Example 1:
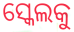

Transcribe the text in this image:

ସ୍କେଲକୁ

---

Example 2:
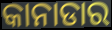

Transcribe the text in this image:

କାନାଡାର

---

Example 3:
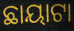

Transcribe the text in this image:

ଛାୟାଟା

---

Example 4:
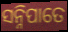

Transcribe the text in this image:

ସନ୍ନିପାତେ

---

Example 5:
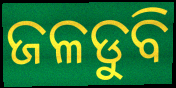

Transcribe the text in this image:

ଜଳଡୁବି